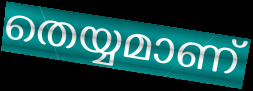
തെയ്യമാണ്